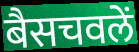
बैसचवलें